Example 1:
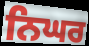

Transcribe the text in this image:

ਨਿਘਰ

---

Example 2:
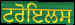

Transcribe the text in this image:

ਟਰੋਇਲਸ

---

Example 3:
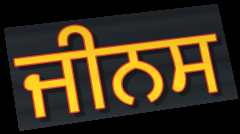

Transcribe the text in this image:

ਜੀਨਸ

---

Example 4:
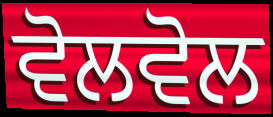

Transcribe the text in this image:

ਵੋਲਵੋਲ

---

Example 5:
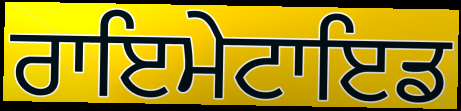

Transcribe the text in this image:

ਰਾਇਮੇਟਾਇਡ